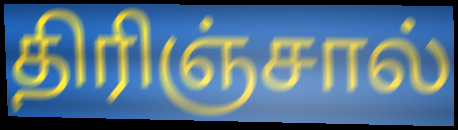
திரிஞ்சால்